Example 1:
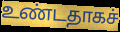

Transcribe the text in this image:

உண்டதாகச்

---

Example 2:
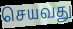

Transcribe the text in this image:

செயவது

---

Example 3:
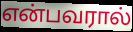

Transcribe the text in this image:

என்பவரால்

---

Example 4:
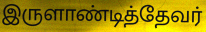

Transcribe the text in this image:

இருளாண்டித்தேவர்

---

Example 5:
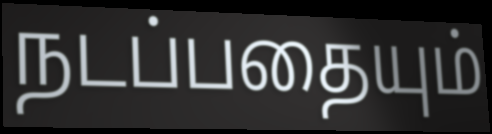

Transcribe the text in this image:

நடப்பதையும்